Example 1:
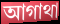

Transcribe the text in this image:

আগাথা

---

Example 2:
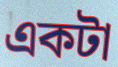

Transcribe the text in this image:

একটা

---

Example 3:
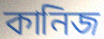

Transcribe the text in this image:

কানিজ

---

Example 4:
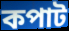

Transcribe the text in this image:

কপাট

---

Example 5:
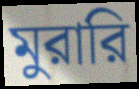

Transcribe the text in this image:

মুরারি